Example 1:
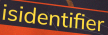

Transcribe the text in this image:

isidentifier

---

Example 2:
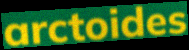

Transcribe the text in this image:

arctoides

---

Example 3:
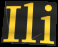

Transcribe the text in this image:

Ili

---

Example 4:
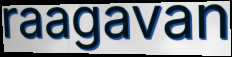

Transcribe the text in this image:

raagavan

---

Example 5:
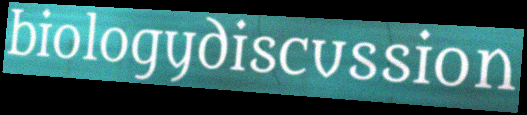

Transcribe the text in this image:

biologydiscussion